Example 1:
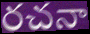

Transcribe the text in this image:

రచనా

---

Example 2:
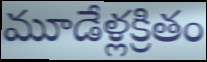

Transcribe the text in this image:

మూడేళ్లక్రితం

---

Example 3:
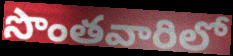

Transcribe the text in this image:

సొంతవారిలో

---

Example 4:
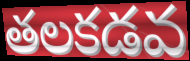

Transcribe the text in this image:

తలకడవ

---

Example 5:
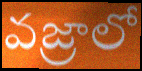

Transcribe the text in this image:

వజ్రాలో